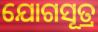
ଯୋଗସୂତ୍ର